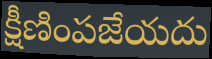
క్షీణింపజేయదు